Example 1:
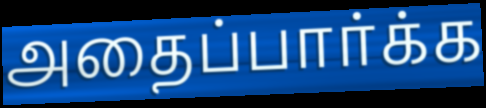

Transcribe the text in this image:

அதைப்பார்க்க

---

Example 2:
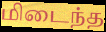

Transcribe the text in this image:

மிடைந்த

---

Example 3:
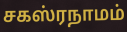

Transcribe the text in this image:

சகஸ்ரநாமம்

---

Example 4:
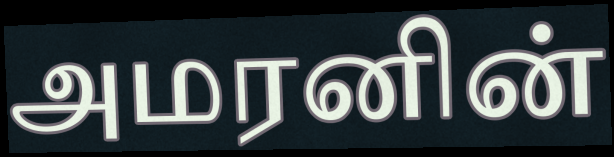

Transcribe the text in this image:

அமரனின்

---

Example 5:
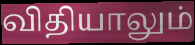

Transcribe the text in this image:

விதியாலும்